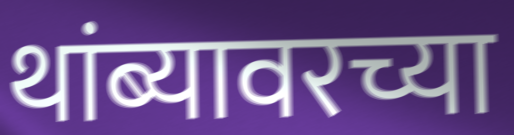
थांब्यावरच्या